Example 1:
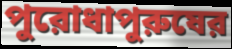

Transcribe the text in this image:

পুরোধাপুরুষের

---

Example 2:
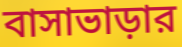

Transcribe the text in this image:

বাসাভাড়ার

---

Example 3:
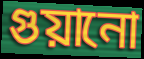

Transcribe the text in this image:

গুয়ানো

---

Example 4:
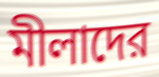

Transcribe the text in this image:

মীলাদের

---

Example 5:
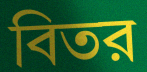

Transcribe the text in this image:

বিতর